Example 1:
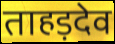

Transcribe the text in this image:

ताहड़देव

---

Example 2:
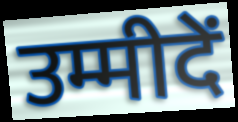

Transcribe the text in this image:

उम्‍मीदें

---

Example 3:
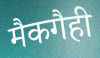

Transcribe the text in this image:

मैकगैही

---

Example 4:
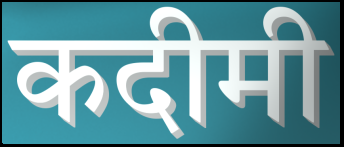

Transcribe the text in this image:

कदीमी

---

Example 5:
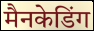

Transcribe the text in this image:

मैनकेडिंग